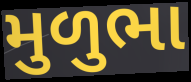
મુળુભા